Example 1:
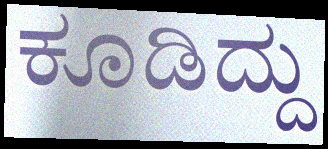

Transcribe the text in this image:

ಕೂಡಿದ್ದು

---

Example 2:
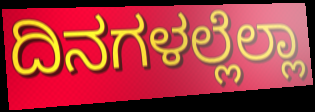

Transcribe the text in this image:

ದಿನಗಳಲ್ಲೆಲ್ಲಾ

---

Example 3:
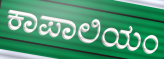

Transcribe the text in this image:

ಕಾಪಾಲಿಯಂ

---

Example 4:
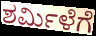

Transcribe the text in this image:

ಶರ್ಮಿಳೆಗೆ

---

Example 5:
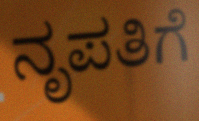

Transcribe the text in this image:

ನೃಪತಿಗೆ